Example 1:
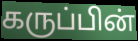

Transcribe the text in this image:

கருப்பின்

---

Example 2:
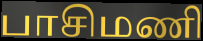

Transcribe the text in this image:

பாசிமணி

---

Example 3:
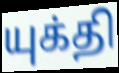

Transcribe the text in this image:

யுக்தி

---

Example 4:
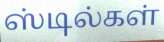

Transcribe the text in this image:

ஸ்டில்கள்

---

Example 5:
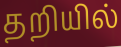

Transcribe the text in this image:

தறியில்